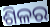
ଶିଳର